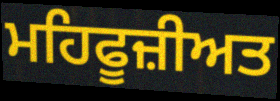
ਮਹਿਫੂਜ਼ੀਅਤ